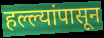
हल्ल्यांपासून